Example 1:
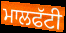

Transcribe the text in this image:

ਮਾਲਫੱਟੀ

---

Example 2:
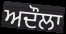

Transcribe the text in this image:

ਅਦੌਲਾ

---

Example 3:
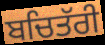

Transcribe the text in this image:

ਬਚਿਤੱਰੀ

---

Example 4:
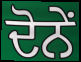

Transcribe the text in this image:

ਦੋਨੇਂ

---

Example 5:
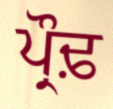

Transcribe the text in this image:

ਪ੍ਰੌਢ਼